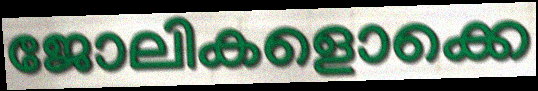
ജോലികളൊക്കെ